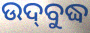
ଉଦ୍‍ବୁଦ୍ଧ